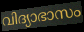
വിദ്യാഭാസം